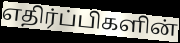
எதிர்ப்பிகளின்